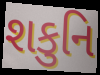
શકુનિ